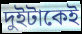
দুইটাকেই